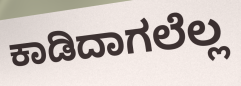
ಕಾಡಿದಾಗಲೆಲ್ಲ